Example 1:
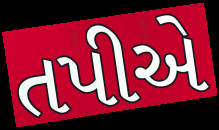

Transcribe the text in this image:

તપીએ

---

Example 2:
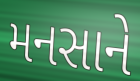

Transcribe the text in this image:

મનસાને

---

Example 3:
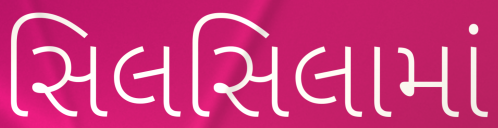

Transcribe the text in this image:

સિલસિલામાં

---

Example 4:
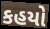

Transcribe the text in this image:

કહયો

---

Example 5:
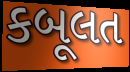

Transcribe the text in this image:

કબૂલત